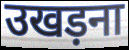
उखड़ना